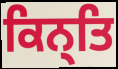
ਕਿਨ੍ਤਿ